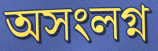
অসংলগ্ন